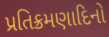
પ્રતિક્રમણાદિનો